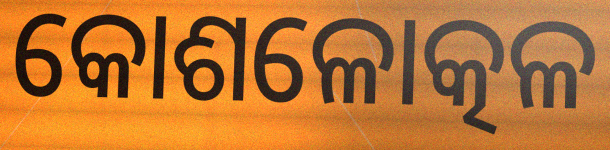
କୋଶଳୋତ୍କଳ